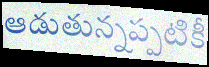
ఆడుతున్నప్పటికీ